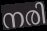
നരി